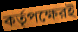
কর্তৃপক্ষেরই